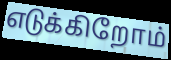
எடுக்கிறோம்